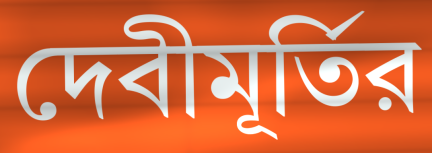
দেবীমূর্তির